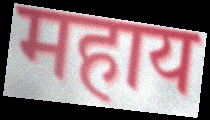
महाय